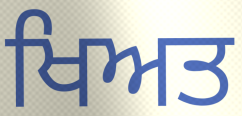
ਖਿਅਤ